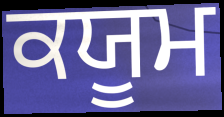
ਕਯੂਮ